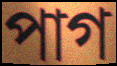
পাগ